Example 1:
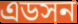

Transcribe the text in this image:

এডসন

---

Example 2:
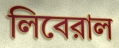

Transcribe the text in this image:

লিবেরাল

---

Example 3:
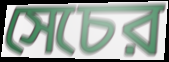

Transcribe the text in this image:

সেচের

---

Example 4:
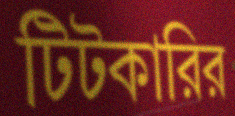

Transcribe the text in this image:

টিটকারির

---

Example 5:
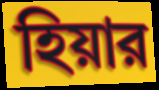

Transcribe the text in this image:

হিয়ার